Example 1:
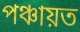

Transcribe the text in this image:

পঞ্চায়ত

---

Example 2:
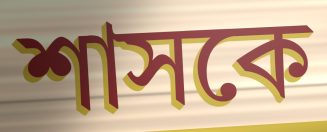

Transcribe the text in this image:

শাসকে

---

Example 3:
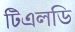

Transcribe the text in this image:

টিএলডি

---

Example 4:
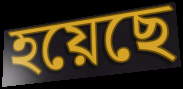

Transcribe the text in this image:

হয়েছে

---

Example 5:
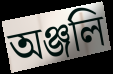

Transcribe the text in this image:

অঞ্জলি